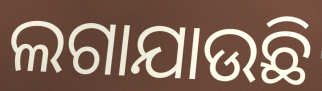
ଲଗାଯାଉଛି